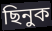
ছিনুক